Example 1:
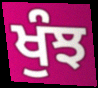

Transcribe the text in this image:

ਖੁੰਝ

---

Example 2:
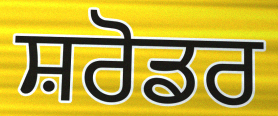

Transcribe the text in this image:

ਸ਼ਰੋਡਰ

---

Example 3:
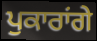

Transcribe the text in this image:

ਪੁਕਾਰਾਂਗੇ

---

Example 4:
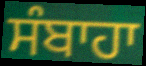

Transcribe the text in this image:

ਸੰਬਾਹਾ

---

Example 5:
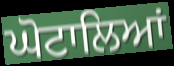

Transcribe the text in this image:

ਘੋਟਾਲਿਆਂ